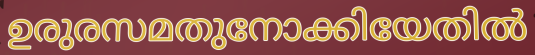
ഉരുരസമതുനോക്കിയേതിൽ